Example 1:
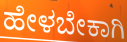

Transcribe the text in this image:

ಹೇಳಬೇಕಾಗಿ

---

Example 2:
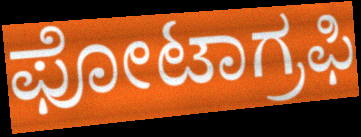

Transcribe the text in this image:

ಫೋಟಾಗ್ರಫಿ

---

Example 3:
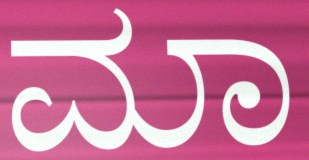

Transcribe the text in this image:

ಮಾ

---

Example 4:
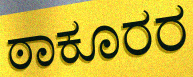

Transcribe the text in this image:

ಠಾಕೂರರ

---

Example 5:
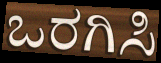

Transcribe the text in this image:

ಒರಗಿಸಿ